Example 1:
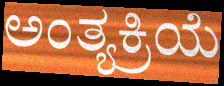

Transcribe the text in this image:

ಅಂತ್ಯಕ್ರಿಯೆ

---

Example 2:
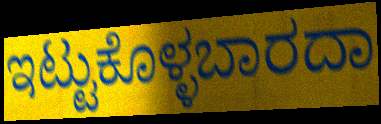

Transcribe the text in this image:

ಇಟ್ಟುಕೊಳ್ಳಬಾರದಾ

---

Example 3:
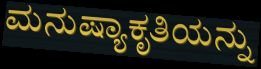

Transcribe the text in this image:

ಮನುಷ್ಯಾಕೃತಿಯನ್ನು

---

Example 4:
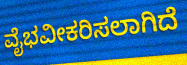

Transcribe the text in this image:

ವೈಭವೀಕರಿಸಲಾಗಿದೆ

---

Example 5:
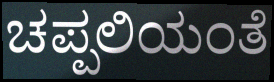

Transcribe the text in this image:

ಚಪ್ಪಲಿಯಂತೆ